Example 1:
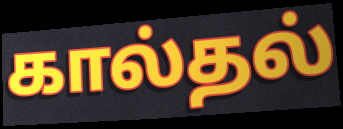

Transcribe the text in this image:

கால்தல்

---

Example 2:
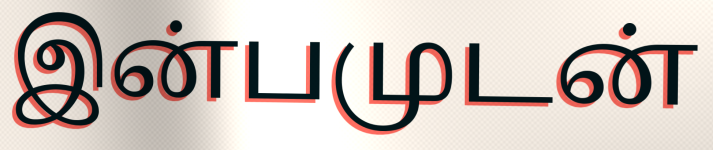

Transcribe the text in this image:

இன்பமுடன்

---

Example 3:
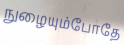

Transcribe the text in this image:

நுழையும்போதே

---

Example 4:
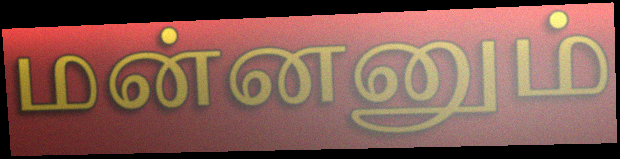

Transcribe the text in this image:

மன்னனும்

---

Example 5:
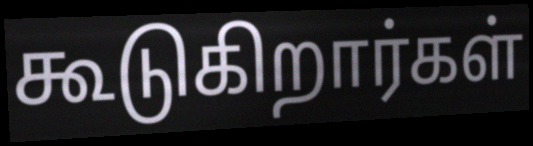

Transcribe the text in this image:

கூடுகிறார்கள்